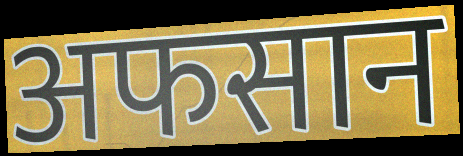
अफसान